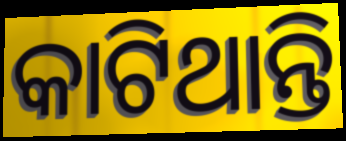
କାଟିଥାନ୍ତି